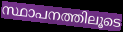
സ്ഥാപനത്തിലൂടെ